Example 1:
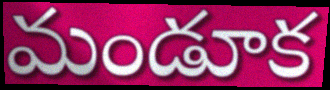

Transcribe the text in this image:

మండూక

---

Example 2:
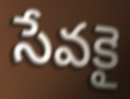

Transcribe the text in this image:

సేవకై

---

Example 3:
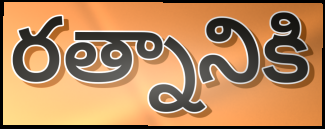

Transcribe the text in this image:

రత్నానికి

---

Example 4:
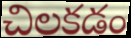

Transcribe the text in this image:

చిలకడం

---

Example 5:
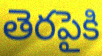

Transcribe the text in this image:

తెరపైకి